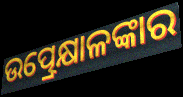
ଉତ୍ପ୍ରେକ୍ଷାଳଙ୍କାର